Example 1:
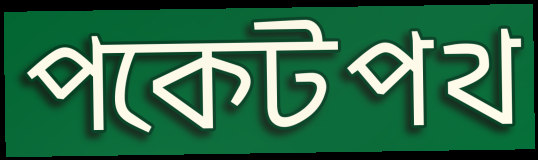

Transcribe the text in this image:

পকেটপথ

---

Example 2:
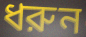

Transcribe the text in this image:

ধরুন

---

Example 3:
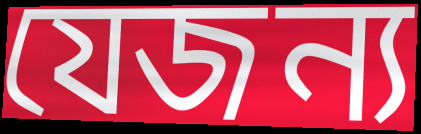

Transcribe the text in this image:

যেজন্য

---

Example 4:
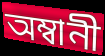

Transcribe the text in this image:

অম্বানী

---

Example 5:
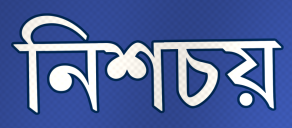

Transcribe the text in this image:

নিশচয়